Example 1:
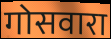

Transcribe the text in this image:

गोसवारा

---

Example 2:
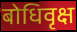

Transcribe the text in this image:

बोधिवृक्ष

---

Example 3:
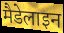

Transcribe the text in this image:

मैडेलाइन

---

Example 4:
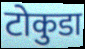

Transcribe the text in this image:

टोकुडा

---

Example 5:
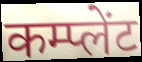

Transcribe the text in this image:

कम्प्लेंट